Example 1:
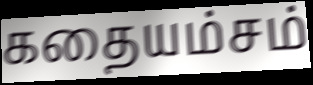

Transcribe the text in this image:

கதையம்சம்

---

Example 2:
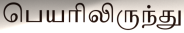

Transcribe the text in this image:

பெயரிலிருந்து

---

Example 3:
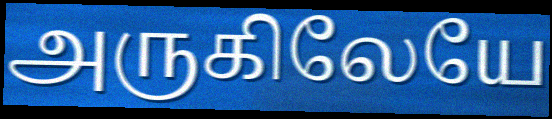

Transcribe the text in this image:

அருகிலேயே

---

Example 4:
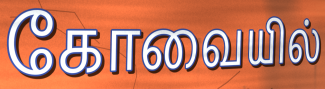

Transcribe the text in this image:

கோவையில்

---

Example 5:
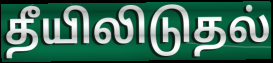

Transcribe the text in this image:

தீயிலிடுதல்